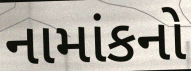
નામાંકનો